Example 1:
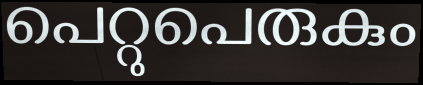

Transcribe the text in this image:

പെറ്റുപെരുകും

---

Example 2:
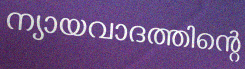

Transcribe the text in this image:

ന്യായവാദത്തിന്റെ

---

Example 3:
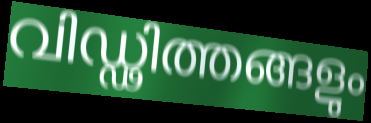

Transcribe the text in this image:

വിഡ്ഢിത്തങ്ങളും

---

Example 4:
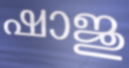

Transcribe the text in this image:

ഷാജു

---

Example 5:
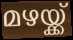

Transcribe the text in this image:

മഴയ്ക്ക്